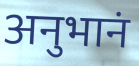
अनुभानं